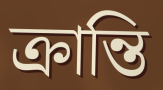
ক্রান্তি